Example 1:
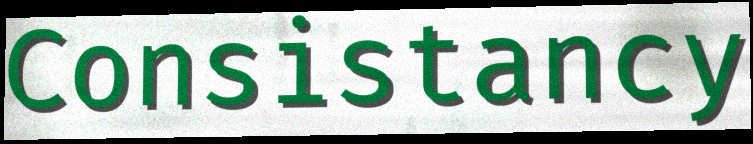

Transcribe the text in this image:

Consistancy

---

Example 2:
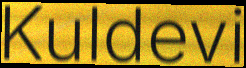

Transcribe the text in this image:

Kuldevi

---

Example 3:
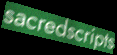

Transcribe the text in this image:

sacredscripts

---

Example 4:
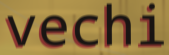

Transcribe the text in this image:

vechi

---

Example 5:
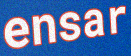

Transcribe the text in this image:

ensar